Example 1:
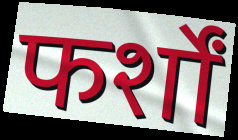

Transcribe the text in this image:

फर्शों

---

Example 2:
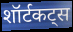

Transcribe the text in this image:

शॉर्टकट्स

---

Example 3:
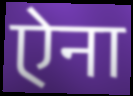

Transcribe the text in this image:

ऐना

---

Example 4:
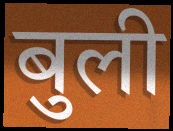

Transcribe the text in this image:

बुली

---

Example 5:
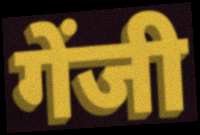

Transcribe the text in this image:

गेंजी